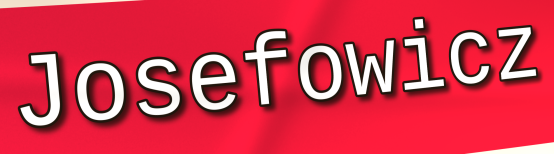
Josefowicz